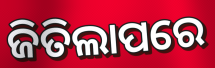
ଜିତିଲାପରେ